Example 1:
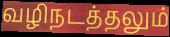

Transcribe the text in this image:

வழிநடத்தலும்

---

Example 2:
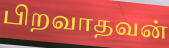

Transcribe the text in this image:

பிறவாதவன்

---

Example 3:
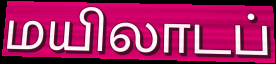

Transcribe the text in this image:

மயிலாடப்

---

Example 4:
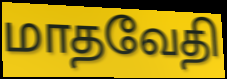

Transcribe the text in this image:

மாதவேதி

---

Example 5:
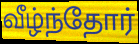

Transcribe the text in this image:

வீழ்ந்தோர்